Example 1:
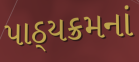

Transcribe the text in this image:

પાઠ્યક્રમનાં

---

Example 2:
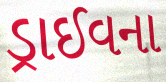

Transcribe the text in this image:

ડ્રાઈવના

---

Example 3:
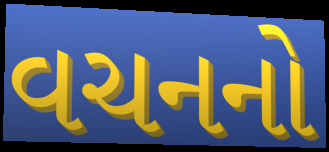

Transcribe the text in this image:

વચનનો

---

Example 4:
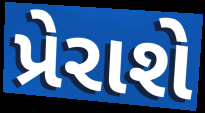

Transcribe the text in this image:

પ્રેરાશે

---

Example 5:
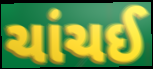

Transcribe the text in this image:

ચાંચઈ